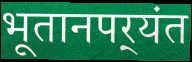
भूतानपर्यंत